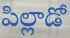
పిల్లాడో